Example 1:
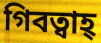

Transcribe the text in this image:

গিবত্বাহ্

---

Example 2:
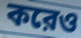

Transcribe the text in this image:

করেও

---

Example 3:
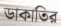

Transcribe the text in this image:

ডাকাতির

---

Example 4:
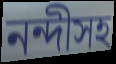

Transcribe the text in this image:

নন্দীসহ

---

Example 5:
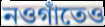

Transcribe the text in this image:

নওগাঁতেও